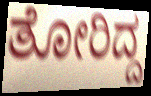
ತೋರಿದ್ದ